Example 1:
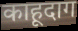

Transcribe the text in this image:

काहूदाग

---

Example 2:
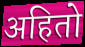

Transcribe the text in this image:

अहितो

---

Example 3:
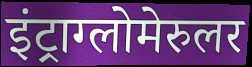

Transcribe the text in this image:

इंट्राग्लोमेरुलर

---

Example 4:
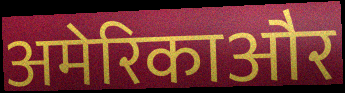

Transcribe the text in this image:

अमेरिकाऔर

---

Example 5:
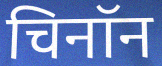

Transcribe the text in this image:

चिनॉन